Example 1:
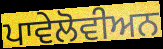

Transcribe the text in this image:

ਪਾਵੇਲੋਵੀਅਨ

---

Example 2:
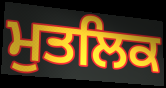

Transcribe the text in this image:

ਮੁਤਲਿਕ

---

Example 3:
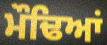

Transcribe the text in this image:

ਮੌਢਿਆਂ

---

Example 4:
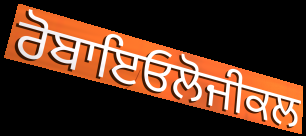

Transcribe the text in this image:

ਰੋਬਾਇਓਲੋਜੀਕਲ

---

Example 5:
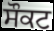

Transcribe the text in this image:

ਸੌਕਟ